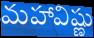
మహావిష్ణు